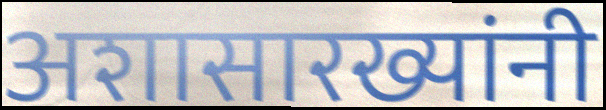
अशासारख्यांनी